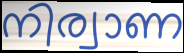
നിര്വാണ